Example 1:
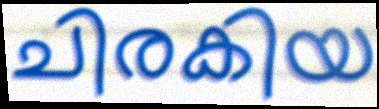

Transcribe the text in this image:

ചിരകിയ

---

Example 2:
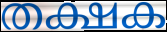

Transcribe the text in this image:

തക്ഷക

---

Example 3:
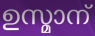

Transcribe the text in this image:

ഉസ്മാന്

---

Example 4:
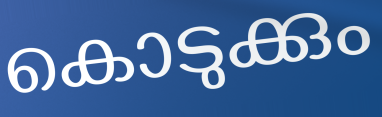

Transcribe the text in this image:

കൊടുക്കും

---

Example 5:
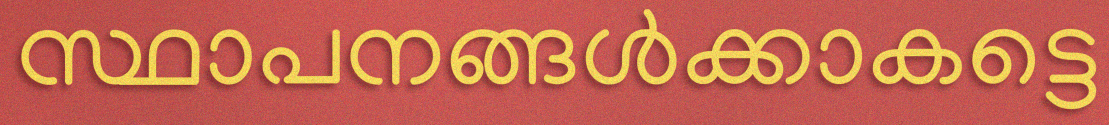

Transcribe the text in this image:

സ്ഥാപനങ്ങൾക്കാകട്ടെ